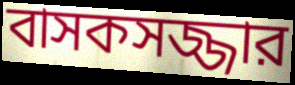
বাসকসজ্জার